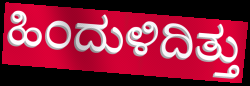
ಹಿಂದುಳಿದಿತ್ತು